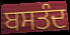
ਬਸਤੰਦ